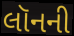
લૉનની